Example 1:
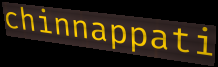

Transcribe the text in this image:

chinnappati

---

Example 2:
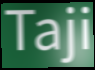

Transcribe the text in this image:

Taji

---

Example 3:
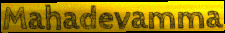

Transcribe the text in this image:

Mahadevamma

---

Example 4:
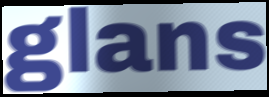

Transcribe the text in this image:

glans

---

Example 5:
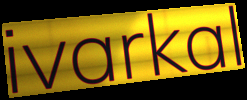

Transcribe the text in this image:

ivarkal